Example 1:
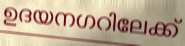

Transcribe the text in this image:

ഉദയനഗറിലേക്ക്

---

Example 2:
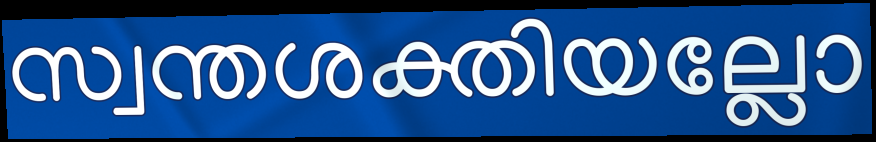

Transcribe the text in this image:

സ്വന്തശക്തിയല്ലോ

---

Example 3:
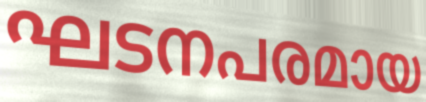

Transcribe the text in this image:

ഘടനപരമായ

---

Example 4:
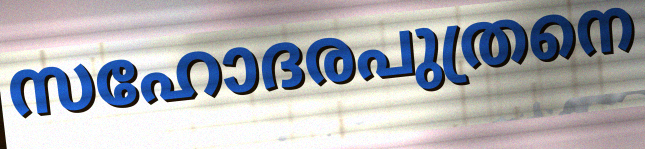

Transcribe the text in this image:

സഹോദരപുത്രനെ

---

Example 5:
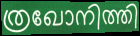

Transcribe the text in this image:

ത്രഖോനിത്തി